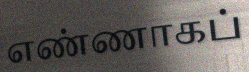
எண்ணாகப்